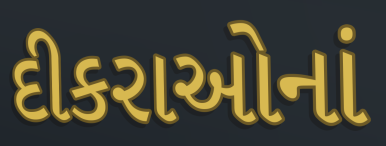
દીકરાઓનાં